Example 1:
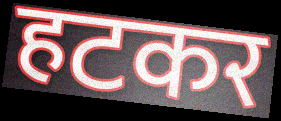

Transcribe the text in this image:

हटकर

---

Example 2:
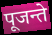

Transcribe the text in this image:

पूजन्ते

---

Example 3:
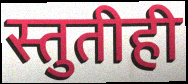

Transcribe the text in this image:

स्तुतीही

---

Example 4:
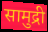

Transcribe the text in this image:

सामुद्री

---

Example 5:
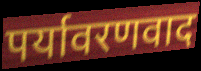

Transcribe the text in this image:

पर्यावरणवाद